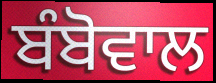
ਬੰਬੋਵਾਲ